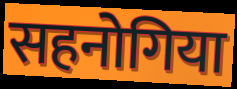
सहनोगिया